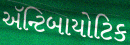
ઍન્ટિબાયોટિક